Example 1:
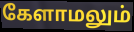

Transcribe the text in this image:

கேளாமலும்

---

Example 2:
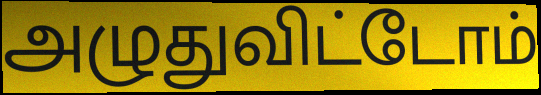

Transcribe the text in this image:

அழுதுவிட்டோம்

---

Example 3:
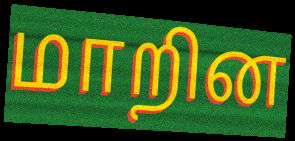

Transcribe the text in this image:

மாறின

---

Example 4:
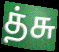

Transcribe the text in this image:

த்சு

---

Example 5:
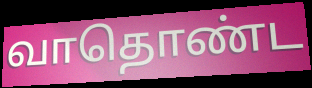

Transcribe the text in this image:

வாதொண்ட